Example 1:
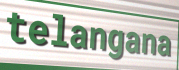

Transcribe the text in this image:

telangana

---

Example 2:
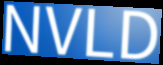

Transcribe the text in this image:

NVLD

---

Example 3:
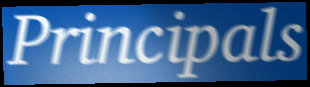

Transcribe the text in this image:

Principals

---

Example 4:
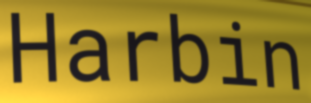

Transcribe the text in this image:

Harbin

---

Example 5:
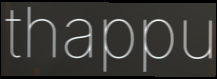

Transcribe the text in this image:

thappu